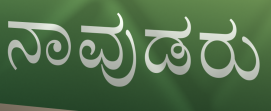
ನಾವುಡರು